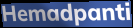
Hemadpanti